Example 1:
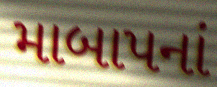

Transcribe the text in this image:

માબાપનાં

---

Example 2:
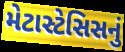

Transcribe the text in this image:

મેટાસ્ટેસિસનું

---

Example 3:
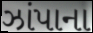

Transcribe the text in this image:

ઝાંપાના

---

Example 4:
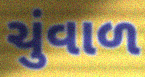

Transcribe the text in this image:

ચુંવાળ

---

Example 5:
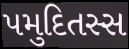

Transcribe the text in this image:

પમુદિતસ્સ